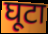
घूटा